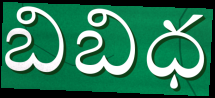
బిబిధ